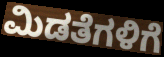
ಮಿಡತೆಗಳಿಗೆ